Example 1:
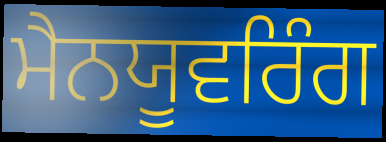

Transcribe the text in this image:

ਮੈਨਯੂਵਰਿੰਗ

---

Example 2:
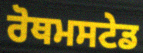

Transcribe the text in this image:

ਰੋਥਮਸਟੇਡ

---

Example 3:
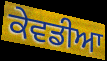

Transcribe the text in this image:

ਕੇਵਡੀਆ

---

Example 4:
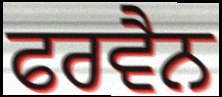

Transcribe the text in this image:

ਫਰਵੈਨ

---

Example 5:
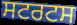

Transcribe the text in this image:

ਸਟਰਟਸ